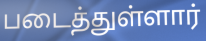
படைத்துள்ளார்